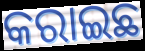
କରାଇଛ